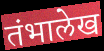
तंभालेख